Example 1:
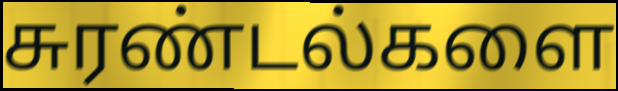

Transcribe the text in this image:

சுரண்டல்களை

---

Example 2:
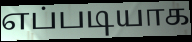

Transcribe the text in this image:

எப்படியாக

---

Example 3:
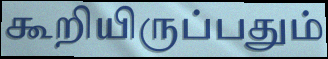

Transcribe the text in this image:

கூறியிருப்பதும்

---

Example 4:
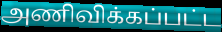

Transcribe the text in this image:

அணிவிக்கப்பட்ட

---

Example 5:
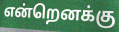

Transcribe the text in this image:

என்றெனக்கு